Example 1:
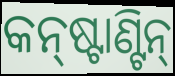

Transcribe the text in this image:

କନ୍‌ଷ୍ଟାଣ୍ଟିନ୍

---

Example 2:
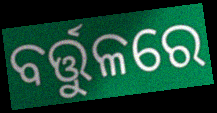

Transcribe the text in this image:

ବର୍ତ୍ତୁଳରେ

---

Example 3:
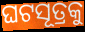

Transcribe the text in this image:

ଘଟସୂତ୍ରକୁ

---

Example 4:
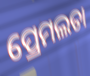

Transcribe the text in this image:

ପ୍ରେମଲତା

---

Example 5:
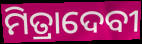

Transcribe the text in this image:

ମିତ୍ରାଦେବୀ